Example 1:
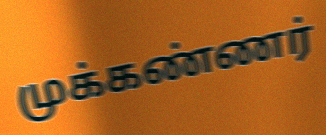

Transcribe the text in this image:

முக்கண்ணர்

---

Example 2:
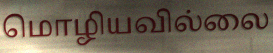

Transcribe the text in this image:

மொழியவில்லை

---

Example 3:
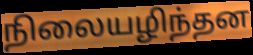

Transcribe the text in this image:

நிலையழிந்தன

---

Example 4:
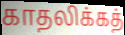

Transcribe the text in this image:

காதலிக்கத்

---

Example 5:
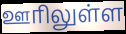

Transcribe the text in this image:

ஊரிலுள்ள